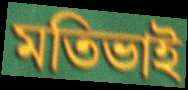
মতিভাই